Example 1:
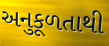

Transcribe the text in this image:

અનુકૂળતાથી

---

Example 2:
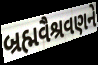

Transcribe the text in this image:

બ્રહ્મવૈશ્રવણને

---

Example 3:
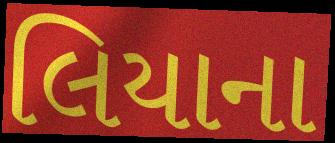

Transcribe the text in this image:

લિયાના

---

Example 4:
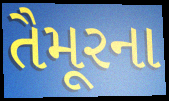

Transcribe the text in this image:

તૈમૂરના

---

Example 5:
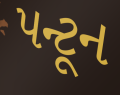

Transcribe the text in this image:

પન્ટૂન